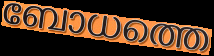
ബോധത്തെ